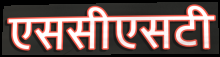
एससीएसटी